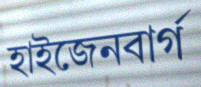
হাইজেনবার্গ